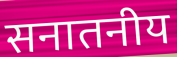
सनातनीय